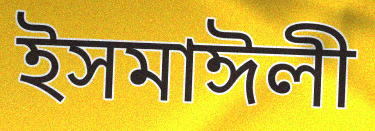
ইসমাঈলী